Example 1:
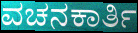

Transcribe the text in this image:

ವಚನಕಾರ್ತಿ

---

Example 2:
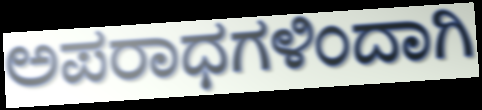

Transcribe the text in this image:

ಅಪರಾಧಗಳಿಂದಾಗಿ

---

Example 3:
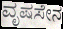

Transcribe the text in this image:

ವೃಷಸೇನ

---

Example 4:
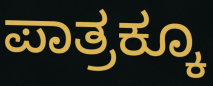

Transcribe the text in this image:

ಪಾತ್ರಕ್ಕೂ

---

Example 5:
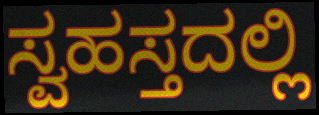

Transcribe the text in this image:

ಸ್ವಹಸ್ತದಲ್ಲಿ